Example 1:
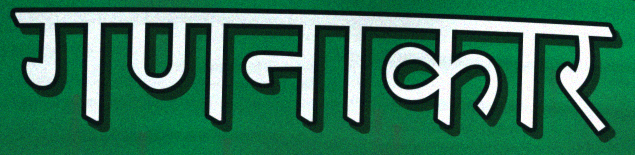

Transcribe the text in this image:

गणनाकार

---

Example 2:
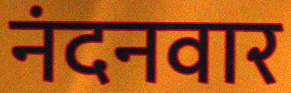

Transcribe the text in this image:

नंदनवार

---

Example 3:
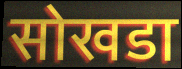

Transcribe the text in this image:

सोखडा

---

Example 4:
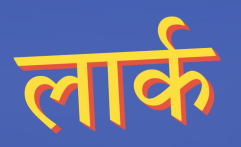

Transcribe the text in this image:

लार्क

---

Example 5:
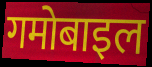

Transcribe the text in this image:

गमोबाइल